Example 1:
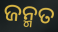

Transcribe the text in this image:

ଜନ୍ମତ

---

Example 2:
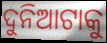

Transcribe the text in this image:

ଦୁନିଆଟାକୁ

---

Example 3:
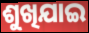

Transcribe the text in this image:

ଶୁଖିଯାଇ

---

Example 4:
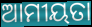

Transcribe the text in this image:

ଆମୀୟତା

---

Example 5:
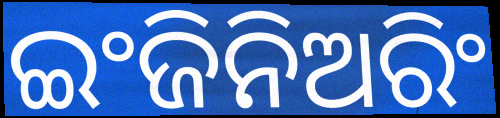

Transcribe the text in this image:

ଇଂଜିନିଅରିଂ